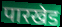
पारखेड